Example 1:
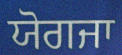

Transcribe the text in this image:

ਯੋਗਜਾ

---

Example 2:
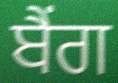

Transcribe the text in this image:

ਬੈਂਗ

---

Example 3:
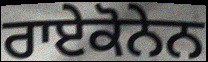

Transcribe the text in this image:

ਰਾਏਕੋਨੇਨ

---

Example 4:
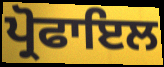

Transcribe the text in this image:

ਪ੍ਰੋਫਾਇਲ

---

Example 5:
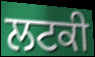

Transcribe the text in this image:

ਲਟਕੀ